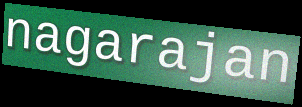
nagarajan